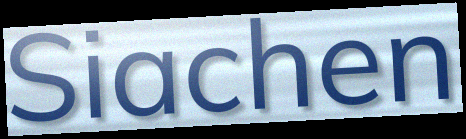
Siachen